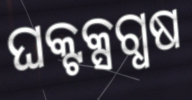
ଘକ୍ଟକ୍ସଗ୍ଧଷ